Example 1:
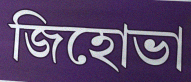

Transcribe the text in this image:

জিহোভা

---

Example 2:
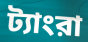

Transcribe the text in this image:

ট্যাংরা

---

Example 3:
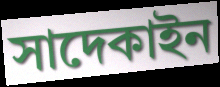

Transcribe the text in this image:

সাদেকাইন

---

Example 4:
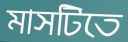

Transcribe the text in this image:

মাসটিতে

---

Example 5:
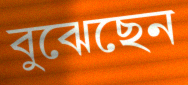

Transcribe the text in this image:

বুঝেছেন